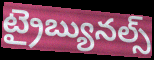
ట్రైబ్యునల్స్